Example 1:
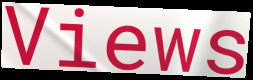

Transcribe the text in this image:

Views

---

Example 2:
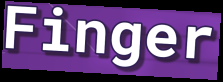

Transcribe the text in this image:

Finger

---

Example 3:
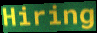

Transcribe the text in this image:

Hiring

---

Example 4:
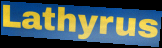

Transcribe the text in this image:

Lathyrus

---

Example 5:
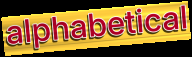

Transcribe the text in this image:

alphabetical